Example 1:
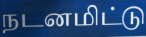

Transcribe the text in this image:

நடனமிட்டு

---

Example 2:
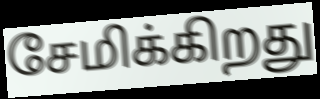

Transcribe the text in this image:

சேமிக்கிறது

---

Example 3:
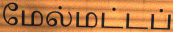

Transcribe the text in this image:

மேல்மட்டப்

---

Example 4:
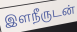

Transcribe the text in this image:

இளநீருடன்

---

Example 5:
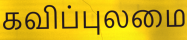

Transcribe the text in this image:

கவிப்புலமை